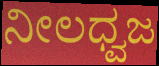
ನೀಲಧ್ವಜ